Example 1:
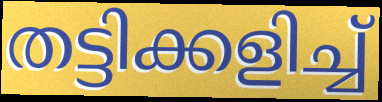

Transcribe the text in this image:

തട്ടിക്കളിച്ച്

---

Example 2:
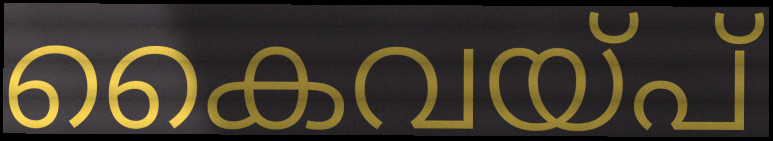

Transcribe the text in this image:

കൈവയ്പ്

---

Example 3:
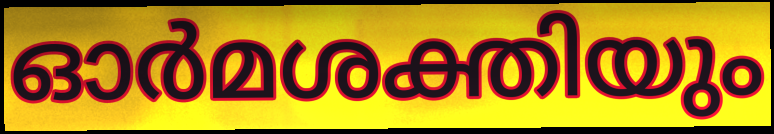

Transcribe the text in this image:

ഓർമശക്തിയും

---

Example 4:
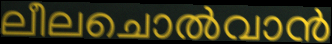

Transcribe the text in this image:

ലീലചൊൽവാൻ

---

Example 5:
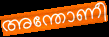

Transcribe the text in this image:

അന്തോണീ